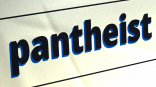
pantheist